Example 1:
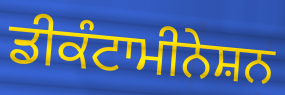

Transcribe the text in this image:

ਡੀਕੰਟਾਮੀਨੇਸ਼ਨ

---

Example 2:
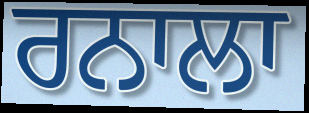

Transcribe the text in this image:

ਰਨਾਲਾ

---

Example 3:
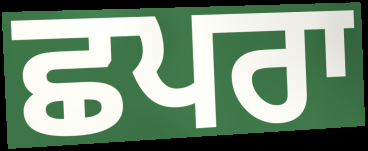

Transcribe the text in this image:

ਛਪਰਾ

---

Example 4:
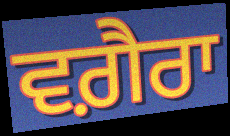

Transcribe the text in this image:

ਵਗ਼ੈਰਾ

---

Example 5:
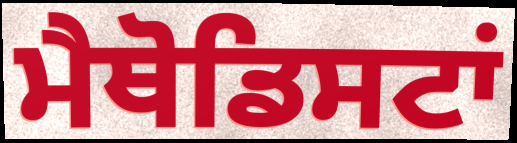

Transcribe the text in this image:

ਮੈਥੋਡਿਸਟਾਂ